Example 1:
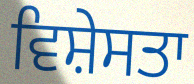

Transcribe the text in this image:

ਵਿਸ਼ੇਸਤਾ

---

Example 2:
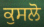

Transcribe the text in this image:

ਕੁਸਲੋ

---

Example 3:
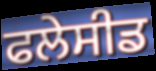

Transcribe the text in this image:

ਫਲੇਸੀਡ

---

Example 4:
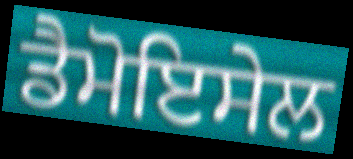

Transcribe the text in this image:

ਡੈਮੋਇਸੇਲ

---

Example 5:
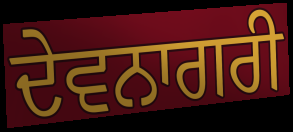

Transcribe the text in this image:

ਦੇਵਨਾਗਰੀ